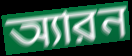
অ্যারন